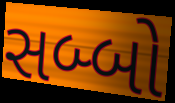
સબ્બો